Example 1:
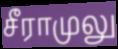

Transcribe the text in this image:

சீராமுலு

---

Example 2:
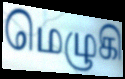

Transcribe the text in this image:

மெழுகி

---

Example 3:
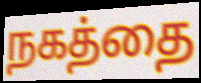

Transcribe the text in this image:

நகத்தை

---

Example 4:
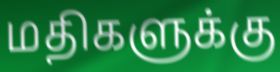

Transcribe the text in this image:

மதிகளுக்கு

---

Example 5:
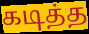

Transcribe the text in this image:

கடித்த